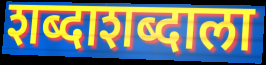
शब्दाशब्दाला